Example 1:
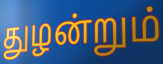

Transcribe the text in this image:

துழன்றும்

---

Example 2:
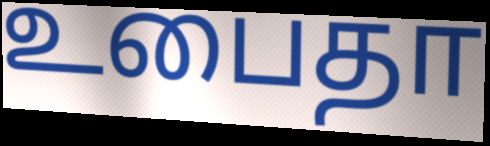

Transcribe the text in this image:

உபைதா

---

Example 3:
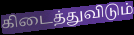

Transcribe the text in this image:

கிடைத்துவிடும்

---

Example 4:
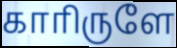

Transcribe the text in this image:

காரிருளே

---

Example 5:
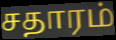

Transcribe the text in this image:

சதாரம்